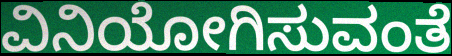
ವಿನಿಯೋಗಿಸುವಂತೆ